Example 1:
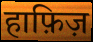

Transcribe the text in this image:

हाफ़िज़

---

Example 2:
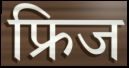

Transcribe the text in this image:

फ्रिज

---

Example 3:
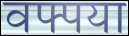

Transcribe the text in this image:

वफ्पया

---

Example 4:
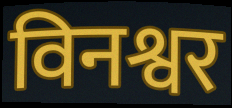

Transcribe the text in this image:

विनश्वर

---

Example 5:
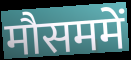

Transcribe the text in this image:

मौसममें